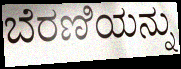
ಬೆರಣಿಯನ್ನು